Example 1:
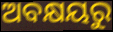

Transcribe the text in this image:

ଅବକ୍ଷୟରୁ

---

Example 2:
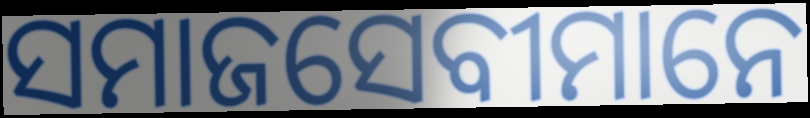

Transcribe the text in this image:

ସମାଜସେବୀମାନେ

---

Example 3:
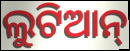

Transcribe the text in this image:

ଲୁଟିଆନ୍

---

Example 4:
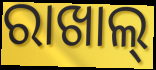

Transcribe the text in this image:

ରାଖାଲ୍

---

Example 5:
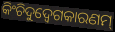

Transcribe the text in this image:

କିଂଚିଦୁଦ୍ବେଗକାରଣମ୍